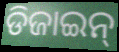
ଡିଜାଇନ୍